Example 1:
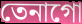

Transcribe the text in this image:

তেনাগো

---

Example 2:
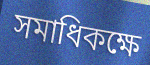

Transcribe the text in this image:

সমাধিকক্ষে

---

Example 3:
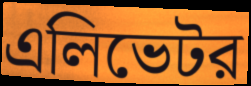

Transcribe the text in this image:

এলিভেটর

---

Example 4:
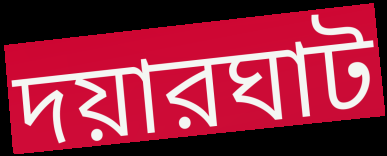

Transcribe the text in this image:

দয়ারঘাট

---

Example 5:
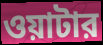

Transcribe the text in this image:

ওয়াটার